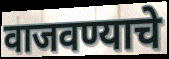
वाजवण्याचे